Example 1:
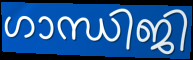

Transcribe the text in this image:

ഗാന്ധിജി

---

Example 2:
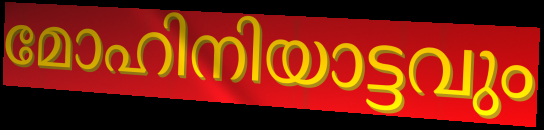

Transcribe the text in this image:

മോഹിനിയാട്ടവും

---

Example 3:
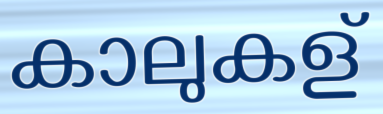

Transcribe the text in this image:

കാലുകള്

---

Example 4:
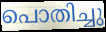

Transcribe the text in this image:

പൊതിച്ചു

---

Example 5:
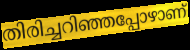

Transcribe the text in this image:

തിരിച്ചറിഞ്ഞപ്പോഴാണ്